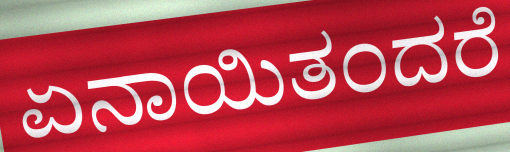
ಏನಾಯಿತಂದರೆ